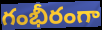
గంభీరంగా